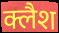
क्लैश